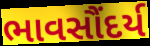
ભાવસૌંદર્ય